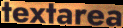
textarea